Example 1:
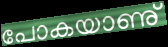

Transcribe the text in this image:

പോകയാണു്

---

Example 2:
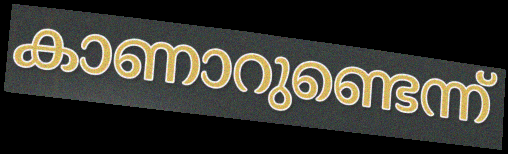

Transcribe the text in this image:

കാണാറുണ്ടെന്ന്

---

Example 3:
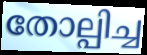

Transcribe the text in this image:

തോല്പിച്ച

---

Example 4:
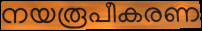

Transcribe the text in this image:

നയരൂപീകരണ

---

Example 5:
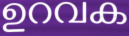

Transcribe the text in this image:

ഉറവക